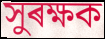
সুৰক্ষক